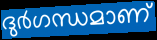
ദുർഗന്ധമാണ്